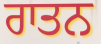
ਰਾਤਨ